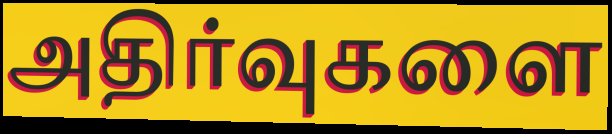
அதிர்வுகளை